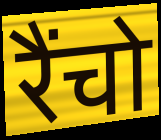
रैंचो